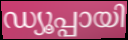
ഡ്യൂപ്പായി